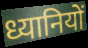
ध्यानियों